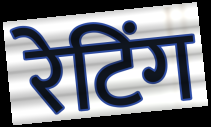
रेटिंग